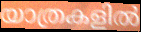
യാത്രകളിൽ